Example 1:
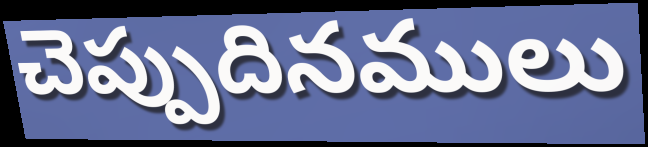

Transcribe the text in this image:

చెప్పుదినములు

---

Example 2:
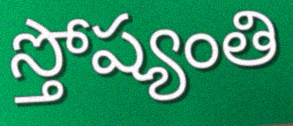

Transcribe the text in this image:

స్తోష్యంతి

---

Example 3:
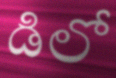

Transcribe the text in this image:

డిలో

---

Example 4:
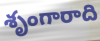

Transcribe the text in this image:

శృంగారాది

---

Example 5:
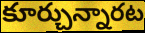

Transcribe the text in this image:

కూర్చున్నారట